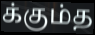
க்கும்த